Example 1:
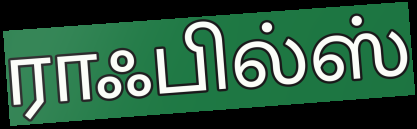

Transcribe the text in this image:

ராஃபில்ஸ்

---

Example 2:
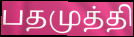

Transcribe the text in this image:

பதமுத்தி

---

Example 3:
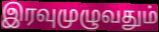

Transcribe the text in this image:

இரவுமுழுவதும்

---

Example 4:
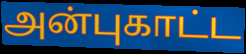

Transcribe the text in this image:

அன்புகாட்ட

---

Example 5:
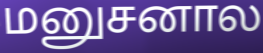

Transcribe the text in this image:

மனுசனால